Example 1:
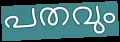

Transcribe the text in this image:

പതവും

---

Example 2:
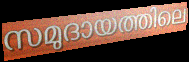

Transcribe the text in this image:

സമുദായത്തിലെ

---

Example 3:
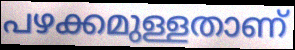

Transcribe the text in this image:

പഴക്കമുള്ളതാണ്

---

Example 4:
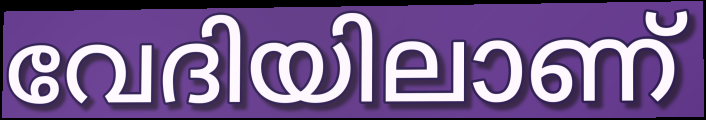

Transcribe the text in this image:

വേദിയിലാണ്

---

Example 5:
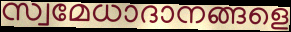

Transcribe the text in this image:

സ്വമേധാദാനങ്ങളെ